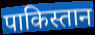
पाकिस्तान